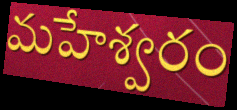
మహేశ్వరం